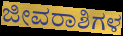
ಜೀವರಾಶಿಗಳ